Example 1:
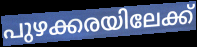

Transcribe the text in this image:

പുഴക്കരയിലേക്ക്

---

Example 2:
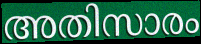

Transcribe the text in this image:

അതിസാരം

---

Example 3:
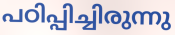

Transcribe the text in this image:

പഠിപ്പിച്ചിരുന്നു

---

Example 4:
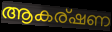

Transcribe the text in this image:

ആകര്ഷണ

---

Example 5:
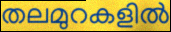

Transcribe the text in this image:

തലമുറകളിൽ